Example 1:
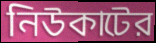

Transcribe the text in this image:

নিউকাটের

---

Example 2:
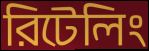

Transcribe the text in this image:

রিটেলিং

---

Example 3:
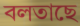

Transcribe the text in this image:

বলতাছে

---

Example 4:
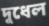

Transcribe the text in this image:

দুধেল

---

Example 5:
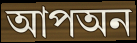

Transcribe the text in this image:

আপঅন